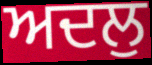
ਅਦਲੁ